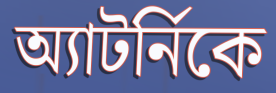
অ্যাটর্নিকে